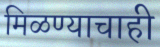
मिळण्याचाही